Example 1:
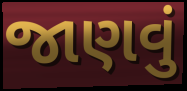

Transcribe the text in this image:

જાણવું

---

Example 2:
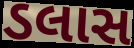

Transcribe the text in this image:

ડલાસ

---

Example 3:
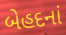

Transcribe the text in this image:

બેહદનાં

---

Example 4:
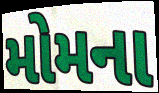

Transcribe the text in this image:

મોમના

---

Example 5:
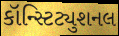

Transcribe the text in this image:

કૉન્સ્ટિટ્યુશનલ